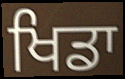
ਖਿਡਾ